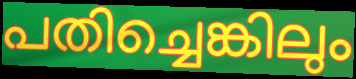
പതിച്ചെങ്കിലും